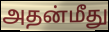
அதன்மீது